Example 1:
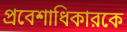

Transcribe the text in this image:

প্রবেশাধিকারকে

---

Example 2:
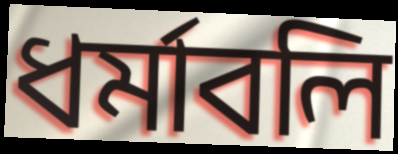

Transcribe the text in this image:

ধর্মাবলি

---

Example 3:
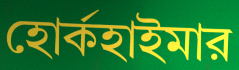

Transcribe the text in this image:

হোর্কহাইমার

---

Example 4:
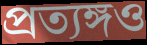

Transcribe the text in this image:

প্রত্যঙ্গও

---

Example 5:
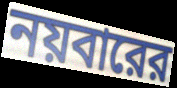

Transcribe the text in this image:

নয়বারের